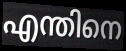
എന്തിനെ